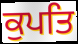
ਕੁਪਤਿ